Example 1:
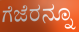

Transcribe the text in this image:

ಗೆಜೆರನ್ನೂ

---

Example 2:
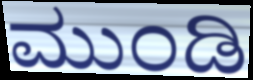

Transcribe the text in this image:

ಮುಂಡಿ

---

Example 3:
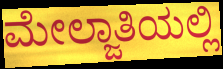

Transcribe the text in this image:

ಮೇಲ್ಜಾತಿಯಲ್ಲಿ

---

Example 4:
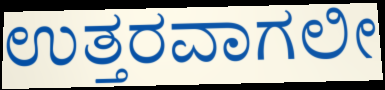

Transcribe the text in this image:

ಉತ್ತರವಾಗಲೀ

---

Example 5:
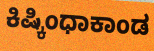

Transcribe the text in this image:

ಕಿಷ್ಕಿಂಧಾಕಾಂಡ